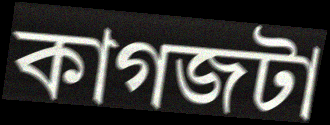
কাগজটা